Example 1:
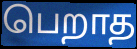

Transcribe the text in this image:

பெறாத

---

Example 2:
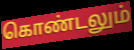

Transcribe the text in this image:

கொண்டலும்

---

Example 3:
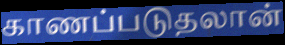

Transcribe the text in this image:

காணப்படுதலான்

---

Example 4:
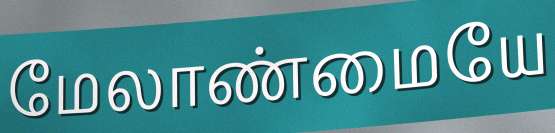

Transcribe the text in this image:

மேலாண்மையே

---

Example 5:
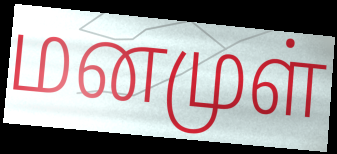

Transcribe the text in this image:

மனமுள்